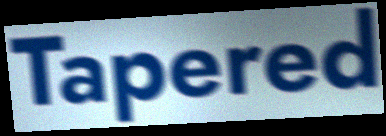
Tapered